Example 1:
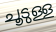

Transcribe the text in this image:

ചൂടുള്ള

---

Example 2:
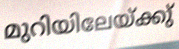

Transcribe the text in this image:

മുറിയിലേയ്ക്കു്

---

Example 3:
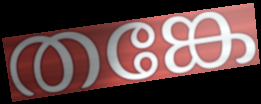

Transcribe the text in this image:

തങ്കേ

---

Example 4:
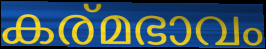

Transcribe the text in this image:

കര്മഭാവം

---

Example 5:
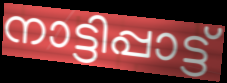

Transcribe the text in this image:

നാട്ടിപ്പാട്ട്